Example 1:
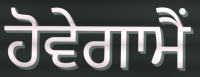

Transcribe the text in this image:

ਹੋਵੇਗਾਮੈਂ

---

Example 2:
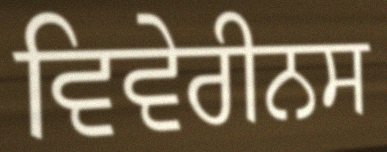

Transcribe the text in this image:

ਵਿਵੇਰੀਨਸ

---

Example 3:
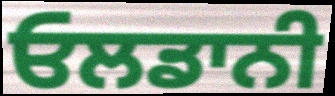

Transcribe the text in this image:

ਓਲਡਾਨੀ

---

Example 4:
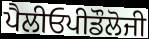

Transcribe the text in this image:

ਪੈਲੀਓਪੀਡੌਲੋਜੀ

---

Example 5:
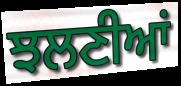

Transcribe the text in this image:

ਝਲਣੀਆਂ